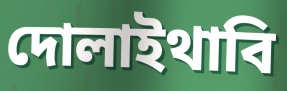
দোলাইথাবি